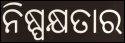
ନିଷ୍ପକ୍ଷତାର